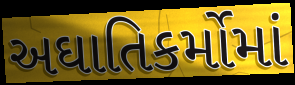
અઘાતિકર્મોમાં